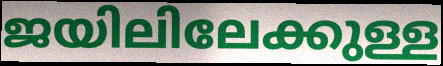
ജയിലിലേക്കുള്ള